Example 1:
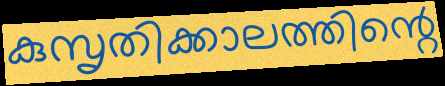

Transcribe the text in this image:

കുസൃതിക്കാലത്തിന്റെ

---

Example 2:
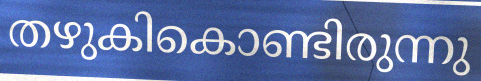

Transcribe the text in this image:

തഴുകികൊണ്ടിരുന്നു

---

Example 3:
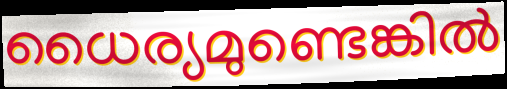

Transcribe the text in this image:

ധൈര്യമുണ്ടെങ്കിൽ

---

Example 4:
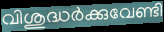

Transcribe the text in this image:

വിശുദ്ധർക്കുവേണ്ടി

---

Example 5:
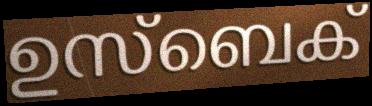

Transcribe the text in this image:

ഉസ്ബെക്